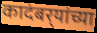
कादंबर्‍यांच्या